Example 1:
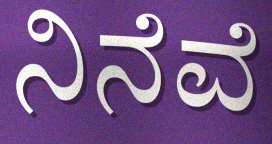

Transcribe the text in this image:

ನಿನೆವೆ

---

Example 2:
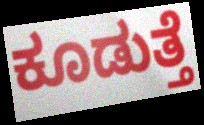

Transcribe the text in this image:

ಕೂಡುತ್ತೆ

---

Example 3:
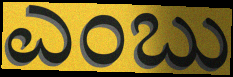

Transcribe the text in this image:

ಎಂಬು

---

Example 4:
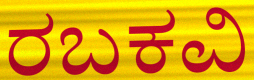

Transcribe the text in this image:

ರಬಕವಿ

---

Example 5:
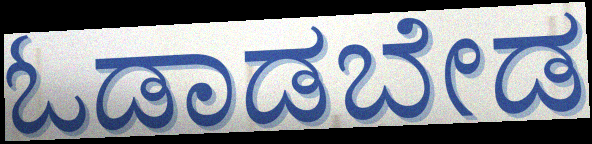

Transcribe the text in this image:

ಓಡಾಡಬೇಡ